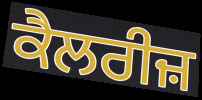
ਕੈਲਰੀਜ਼